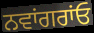
ਨਵਾਂਗਰਾਂਓ